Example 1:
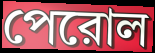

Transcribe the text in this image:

পেরোল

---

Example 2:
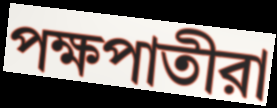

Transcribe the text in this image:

পক্ষপাতীরা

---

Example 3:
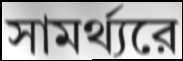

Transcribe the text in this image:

সামর্থ্যরে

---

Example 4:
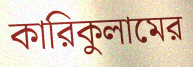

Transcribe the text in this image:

কারিকুলামের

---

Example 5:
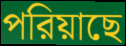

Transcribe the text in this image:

পরিয়াছে